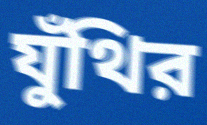
যুঁথির